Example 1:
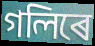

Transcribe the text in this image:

গলিৰে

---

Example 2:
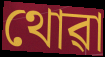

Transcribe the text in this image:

থোৱা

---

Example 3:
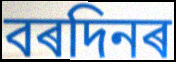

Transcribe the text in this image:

বৰদিনৰ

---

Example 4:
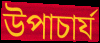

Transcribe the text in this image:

উপাচাৰ্য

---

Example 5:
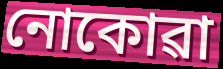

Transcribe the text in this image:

নোকোৱা